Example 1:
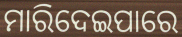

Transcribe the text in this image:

ମାରିଦେଇପାରେ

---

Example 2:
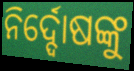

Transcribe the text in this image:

ନିର୍ଦ୍ଦୋଷଙ୍କୁ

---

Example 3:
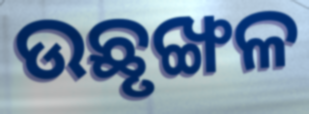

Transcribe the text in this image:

ଉଛୃଙ୍ଖଳ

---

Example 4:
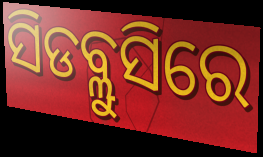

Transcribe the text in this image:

ସିଡବ୍ଲୁସିରେ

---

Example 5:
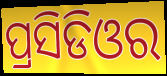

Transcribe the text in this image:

ପ୍ରସିଡିଓର